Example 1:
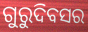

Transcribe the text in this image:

ଗୁରୁଦିବସର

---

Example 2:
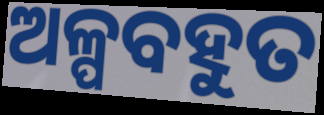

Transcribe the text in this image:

ଅଳ୍ପବହୁତ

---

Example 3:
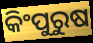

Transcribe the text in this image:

କିଂପୁରୁଷ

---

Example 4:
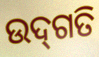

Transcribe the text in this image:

ଉଦ୍‌ଗତି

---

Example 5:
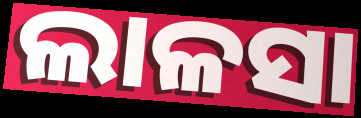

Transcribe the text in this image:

ଲାଳସା